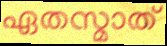
ഏതസ്മാത്